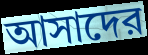
আসাদের